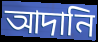
আদানি